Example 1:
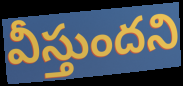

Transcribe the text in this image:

వీస్తుందని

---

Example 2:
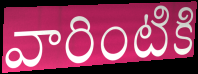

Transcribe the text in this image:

వారింటికి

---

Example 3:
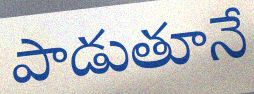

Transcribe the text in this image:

పాడుతూనే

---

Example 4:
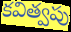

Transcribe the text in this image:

కవిత్వపు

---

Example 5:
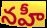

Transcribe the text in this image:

నహీ